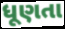
ધૂણતા